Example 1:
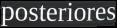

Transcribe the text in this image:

posteriores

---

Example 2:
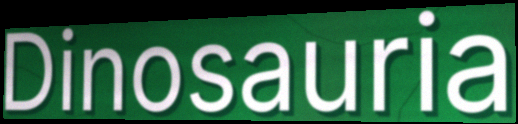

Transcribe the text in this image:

Dinosauria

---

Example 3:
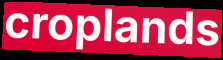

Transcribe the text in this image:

croplands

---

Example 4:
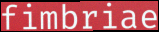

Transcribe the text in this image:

fimbriae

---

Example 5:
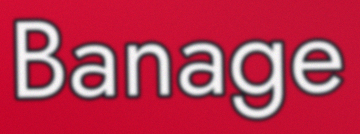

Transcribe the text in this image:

Banage